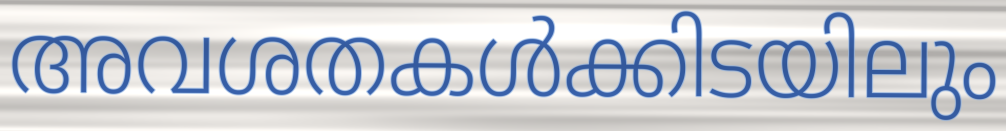
അവശതകൾക്കിടയിലും